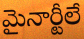
మైనార్టీలే